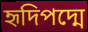
হৃদিপদ্মে